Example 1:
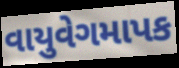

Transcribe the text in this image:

વાયુવેગમાપક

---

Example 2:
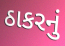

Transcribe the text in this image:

ઠાકરનું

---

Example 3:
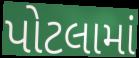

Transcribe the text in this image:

પોટલામાં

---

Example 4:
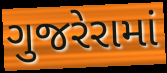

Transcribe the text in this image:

ગુજરેરામાં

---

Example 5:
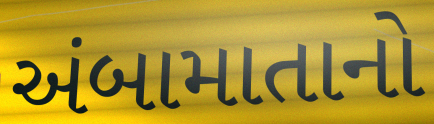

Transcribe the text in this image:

અંબામાતાનો